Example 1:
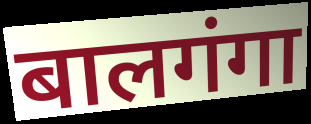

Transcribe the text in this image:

बालगंगा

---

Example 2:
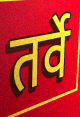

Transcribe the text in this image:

तर्वे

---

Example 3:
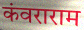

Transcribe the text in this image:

कंवराराम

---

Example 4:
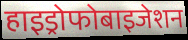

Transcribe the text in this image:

हाइड्रोफोबाइजेशन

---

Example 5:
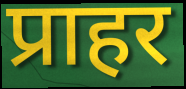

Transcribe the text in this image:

प्राहर